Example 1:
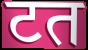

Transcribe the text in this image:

टत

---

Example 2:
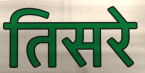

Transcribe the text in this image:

तिसरे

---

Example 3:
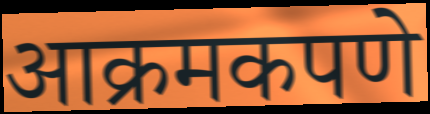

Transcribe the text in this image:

आक्रमकपणे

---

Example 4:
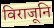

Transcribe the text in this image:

विराजूनि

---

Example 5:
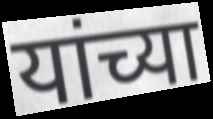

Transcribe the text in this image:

यांच्या